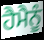
ਹੈਮੈਨੂੰ